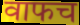
वाफच